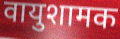
वायुशामक